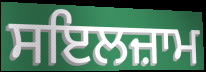
ਸਇਲਜ਼ਾਮ